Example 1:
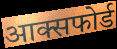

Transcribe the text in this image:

आक्सफोर्ड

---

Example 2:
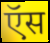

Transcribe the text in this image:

ऍस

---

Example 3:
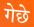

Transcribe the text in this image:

गेछे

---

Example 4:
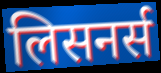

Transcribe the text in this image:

लिसनर्स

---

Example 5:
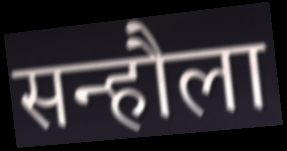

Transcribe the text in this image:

सन्हौला